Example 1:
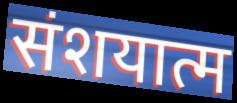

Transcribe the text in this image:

संशयात्म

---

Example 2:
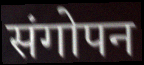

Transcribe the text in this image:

संगोपन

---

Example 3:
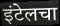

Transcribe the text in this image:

इंटेलचा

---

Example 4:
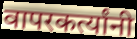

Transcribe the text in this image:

वापरकर्त्यांनी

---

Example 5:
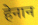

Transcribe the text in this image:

हेनान